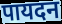
पायदन